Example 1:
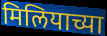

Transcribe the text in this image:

मिलियाच्या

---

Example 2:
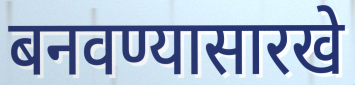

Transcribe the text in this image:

बनवण्यासारखे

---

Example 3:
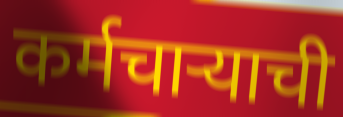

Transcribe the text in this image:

कर्मचार्‍याची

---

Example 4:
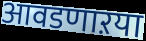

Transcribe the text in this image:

आवडणाऱया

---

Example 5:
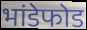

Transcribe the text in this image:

भांडेफोड